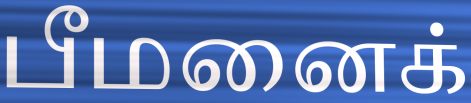
பீமனைக்